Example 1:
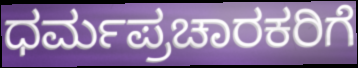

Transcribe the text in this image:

ಧರ್ಮಪ್ರಚಾರಕರಿಗೆ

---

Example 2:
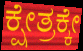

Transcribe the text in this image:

ಕ್ಷೇತ್ರಕ್ಕೇ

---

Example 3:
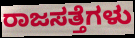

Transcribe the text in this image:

ರಾಜಸತ್ತೆಗಳು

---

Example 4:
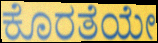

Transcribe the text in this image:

ಕೊರತೆಯೇ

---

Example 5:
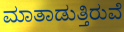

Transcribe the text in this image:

ಮಾತಾಡುತ್ತಿರುವೆ